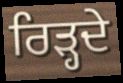
ਰਿੜ੍ਹਦੇ